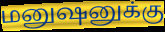
மனுஷனுக்கு